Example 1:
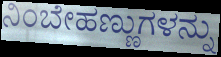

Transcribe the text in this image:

ನಿಂಬೇಹಣ್ಣುಗಳನ್ನು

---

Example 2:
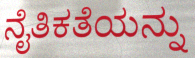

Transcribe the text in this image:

ನೈತಿಕತೆಯನ್ನು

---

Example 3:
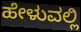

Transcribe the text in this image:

ಹೇಳುವಲ್ಲಿ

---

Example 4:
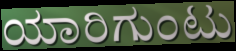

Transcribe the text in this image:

ಯಾರಿಗುಂಟು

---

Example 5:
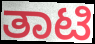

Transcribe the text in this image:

ತಾಟಿ